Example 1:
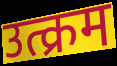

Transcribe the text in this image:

उत्क्रम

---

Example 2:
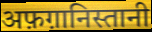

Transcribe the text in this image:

अफ़ग़ानिस्तानी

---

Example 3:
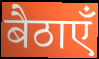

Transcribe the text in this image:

बैठाएँ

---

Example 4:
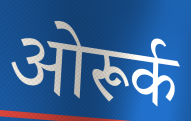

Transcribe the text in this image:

ओरूर्क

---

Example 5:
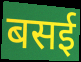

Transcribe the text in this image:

बसई